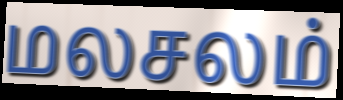
மலசலம்